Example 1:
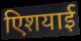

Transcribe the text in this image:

एिशयाई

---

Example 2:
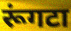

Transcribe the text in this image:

रूंगटा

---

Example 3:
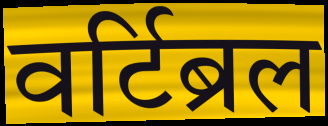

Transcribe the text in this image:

वर्टिब्रल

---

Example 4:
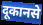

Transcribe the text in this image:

दूकानसे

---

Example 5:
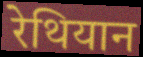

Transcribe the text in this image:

रेथियान